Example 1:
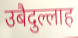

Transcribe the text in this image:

उबैदुल्लाह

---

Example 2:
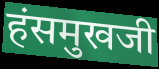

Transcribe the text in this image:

हंसमुखजी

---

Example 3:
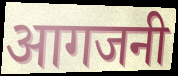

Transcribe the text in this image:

आगजनी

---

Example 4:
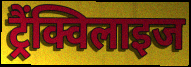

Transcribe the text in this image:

ट्रैंक्विलाइज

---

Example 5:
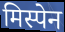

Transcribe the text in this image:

मिस्पेन